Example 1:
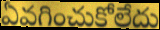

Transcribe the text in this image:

ఏవగించుకోలేదు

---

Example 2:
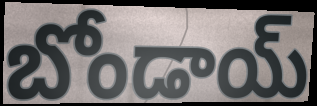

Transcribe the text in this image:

బోండాయ్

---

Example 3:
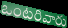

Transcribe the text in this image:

ఒంటరివారు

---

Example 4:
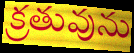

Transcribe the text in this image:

క్రతువును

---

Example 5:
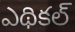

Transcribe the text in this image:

ఎథికల్